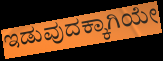
ಇಡುವುದಕ್ಕಾಗಿಯೇ